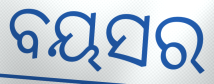
ବୟସର